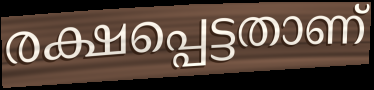
രക്ഷപ്പെട്ടതാണ്